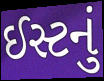
ઈસ્ટનું